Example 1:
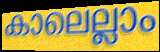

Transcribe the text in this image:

കാലെല്ലാം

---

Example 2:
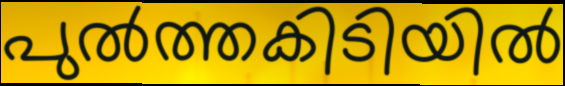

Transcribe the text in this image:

പുൽത്തകിടിയിൽ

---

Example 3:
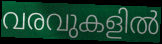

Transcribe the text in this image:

വരവുകളിൽ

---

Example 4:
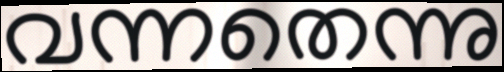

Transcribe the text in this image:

വന്നതെന്നു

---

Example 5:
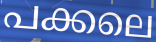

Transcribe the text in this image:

പക്കലെ